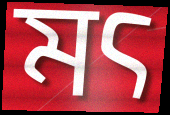
মৎ